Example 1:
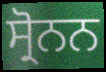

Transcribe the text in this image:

ਸ੍ਰੋਨਨ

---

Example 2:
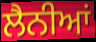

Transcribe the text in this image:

ਲੈਨੀਆਂ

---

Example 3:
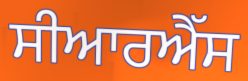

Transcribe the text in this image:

ਸੀਆਰਐੱਸ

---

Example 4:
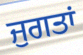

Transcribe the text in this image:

ਜੁਗਤਾਂ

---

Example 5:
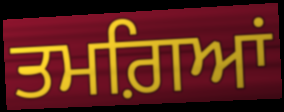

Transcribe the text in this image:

ਤਮਗ਼ਿਆਂ